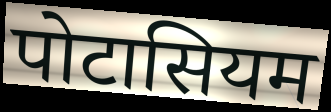
पोटासियम